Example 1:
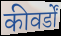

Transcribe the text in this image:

कीवर्डों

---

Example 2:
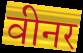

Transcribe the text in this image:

वीनर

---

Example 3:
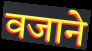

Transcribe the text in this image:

वजाने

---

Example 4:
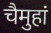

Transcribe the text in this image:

चैमुहां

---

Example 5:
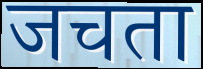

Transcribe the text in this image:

जचता